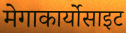
मेगाकार्योसाइट